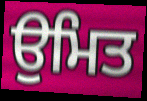
ਉਮਿਤ